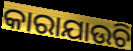
କାରାଯାଉଚି